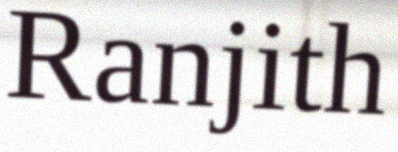
Ranjith